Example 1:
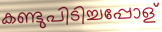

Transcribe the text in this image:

കണ്ടുപിടിച്ചപ്പോള്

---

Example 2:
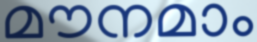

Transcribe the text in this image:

മൗനമാം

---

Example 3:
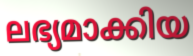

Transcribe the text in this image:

ലഭ്യമാക്കിയ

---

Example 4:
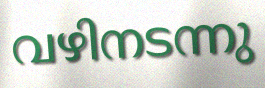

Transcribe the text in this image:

വഴിനടന്നു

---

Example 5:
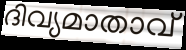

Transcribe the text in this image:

ദിവ്യമാതാവ്